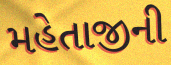
મહેતાજીની